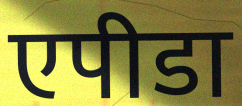
एपीडा